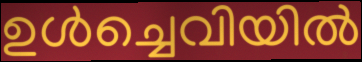
ഉൾച്ചെവിയിൽ